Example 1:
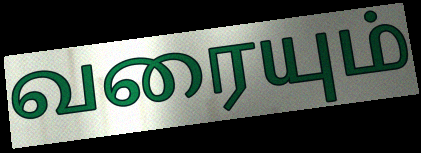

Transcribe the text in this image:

வரையும்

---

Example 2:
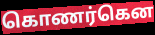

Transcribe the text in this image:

கொணர்கென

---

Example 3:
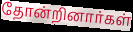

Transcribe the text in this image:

தோன்றினார்கள்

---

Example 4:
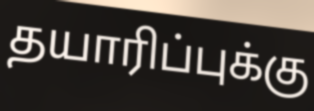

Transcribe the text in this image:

தயாரிப்புக்கு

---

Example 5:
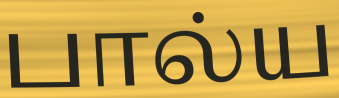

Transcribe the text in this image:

பால்ய